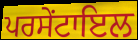
ਪਰਸੇਂਟਾਇਲ